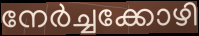
നേർച്ചക്കോഴി